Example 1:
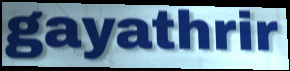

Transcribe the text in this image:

gayathrir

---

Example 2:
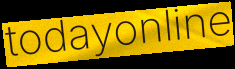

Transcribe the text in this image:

todayonline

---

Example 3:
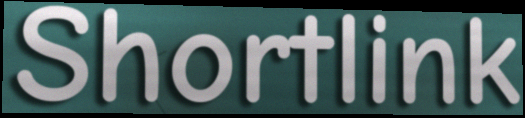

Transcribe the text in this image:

Shortlink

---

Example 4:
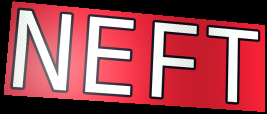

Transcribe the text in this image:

NEFT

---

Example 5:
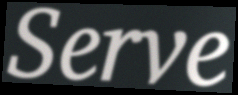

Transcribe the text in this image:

Serve